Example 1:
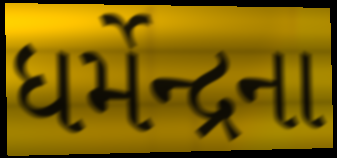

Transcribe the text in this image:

ધર્મેન્દ્રના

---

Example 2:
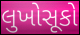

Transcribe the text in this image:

લુખોસૂકો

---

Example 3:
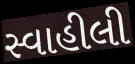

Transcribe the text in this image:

સ્વાહીલી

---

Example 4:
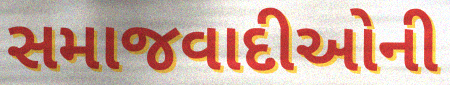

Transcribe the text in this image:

સમાજવાદીઓની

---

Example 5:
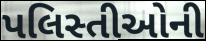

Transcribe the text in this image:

પલિસ્તીઓની